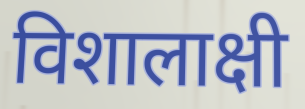
विशालाक्षी